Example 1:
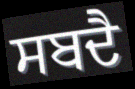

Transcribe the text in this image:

ਸਬਦੈ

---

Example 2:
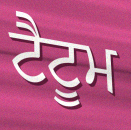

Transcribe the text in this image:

ਟੈਟੂਮ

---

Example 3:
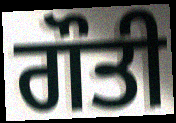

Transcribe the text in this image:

ਗੌਤੀ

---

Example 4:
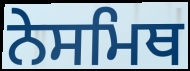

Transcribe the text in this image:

ਨੇਸਮਿਥ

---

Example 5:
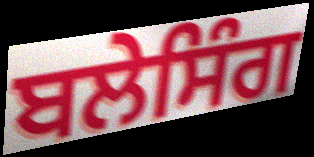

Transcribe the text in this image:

ਬਲੇਸਿੰਗ